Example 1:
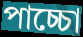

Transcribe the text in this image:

পাচ্চো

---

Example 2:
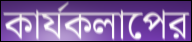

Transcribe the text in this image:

কার্যকলাপের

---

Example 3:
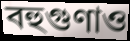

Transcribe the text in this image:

বহুগুণাও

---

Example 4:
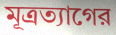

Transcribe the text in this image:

মূত্রত্যাগের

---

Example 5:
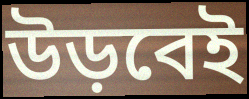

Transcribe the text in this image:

উড়বেই